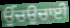
ਉੱਚਉਚਾਈ